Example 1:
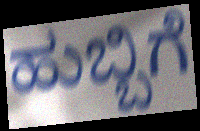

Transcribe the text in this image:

ಹುಬ್ಬಿಗೆ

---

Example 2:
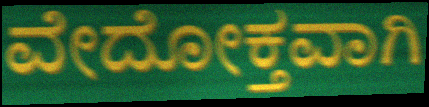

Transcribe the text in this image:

ವೇದೋಕ್ತವಾಗಿ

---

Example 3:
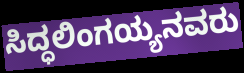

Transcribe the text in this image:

ಸಿದ್ಧಲಿಂಗಯ್ಯನವರು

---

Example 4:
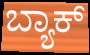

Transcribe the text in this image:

ಬ್ಯಾಕ್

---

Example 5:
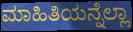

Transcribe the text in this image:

ಮಾಹಿತಿಯನ್ನೆಲ್ಲಾ